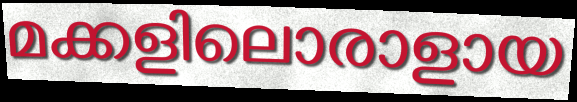
മക്കളിലൊരാളായ